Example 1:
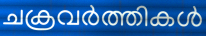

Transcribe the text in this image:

ചക്രവർത്തികൾ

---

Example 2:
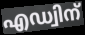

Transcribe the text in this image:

എഡ്വിന്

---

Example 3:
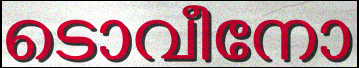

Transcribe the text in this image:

ടൊവീനോ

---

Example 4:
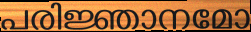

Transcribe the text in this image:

പരിജ്ഞാനമോ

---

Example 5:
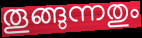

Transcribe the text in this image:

തൂങ്ങുന്നതും